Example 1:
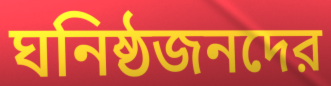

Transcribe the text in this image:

ঘনিষ্ঠজনদের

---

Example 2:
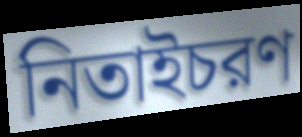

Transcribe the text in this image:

নিতাইচরণ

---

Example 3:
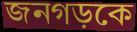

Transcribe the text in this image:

জনগড়কে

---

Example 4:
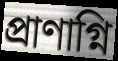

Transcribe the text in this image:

প্রাণাগ্নি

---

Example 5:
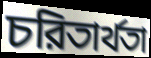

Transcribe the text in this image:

চরিতার্থতা